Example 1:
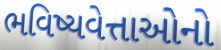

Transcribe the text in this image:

ભવિષ્યવેત્તાઓનો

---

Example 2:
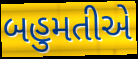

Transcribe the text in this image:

બહુમતીએ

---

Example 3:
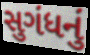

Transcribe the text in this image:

સુગંધનું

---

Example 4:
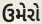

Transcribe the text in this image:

ઉમેરો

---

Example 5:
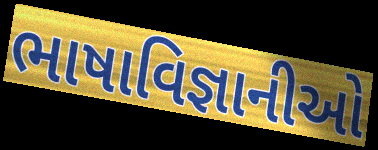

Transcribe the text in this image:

ભાષાવિજ્ઞાનીઓ